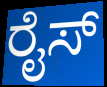
ರೈಸ್